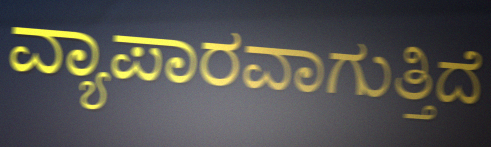
ವ್ಯಾಪಾರವಾಗುತ್ತಿದೆ